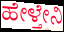
ಹೇಳ್ತೇನಿ